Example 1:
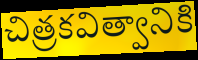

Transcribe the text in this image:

చిత్రకవిత్వానికి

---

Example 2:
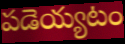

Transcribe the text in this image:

పడెయ్యటం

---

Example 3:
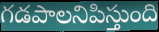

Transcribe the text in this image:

గడపాలనిపిస్తుంది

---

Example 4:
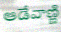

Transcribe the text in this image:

ఆడేవాణ్ణి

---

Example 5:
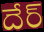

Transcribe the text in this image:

దేర్